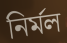
নিৰ্মল